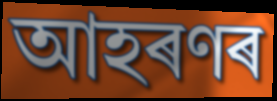
আহৰণৰ